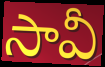
సావీ